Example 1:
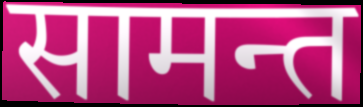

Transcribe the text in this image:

सामन्त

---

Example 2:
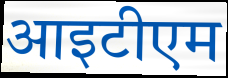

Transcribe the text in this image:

आइटीएम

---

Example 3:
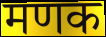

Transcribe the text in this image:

मणक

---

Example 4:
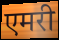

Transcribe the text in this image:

एमरी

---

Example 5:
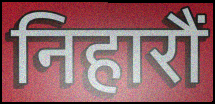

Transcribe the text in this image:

निहारौं